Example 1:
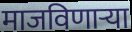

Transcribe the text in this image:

माजविणाऱ्या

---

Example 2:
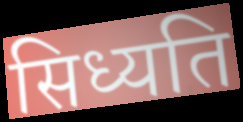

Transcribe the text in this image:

सिध्यति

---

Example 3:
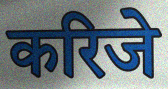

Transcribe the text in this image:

करिजे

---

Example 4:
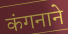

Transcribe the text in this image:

कंगनाने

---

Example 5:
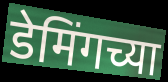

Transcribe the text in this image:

डेमिंगच्या